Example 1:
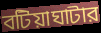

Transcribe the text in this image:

বটিয়াঘাটার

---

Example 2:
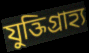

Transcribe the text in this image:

যুক্তিগ্রাহ্য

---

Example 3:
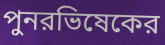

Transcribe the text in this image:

পুনরভিষেকের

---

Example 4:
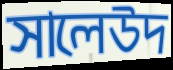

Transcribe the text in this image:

সালেউদ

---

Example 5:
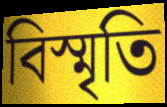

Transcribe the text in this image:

বিস্মৃতি